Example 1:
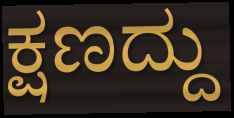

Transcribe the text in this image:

ಕ್ಷಣದ್ದು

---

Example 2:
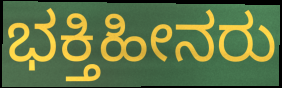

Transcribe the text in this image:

ಭಕ್ತಿಹೀನರು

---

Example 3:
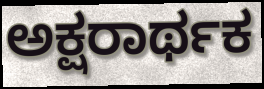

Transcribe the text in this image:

ಅಕ್ಷರಾರ್ಥಕ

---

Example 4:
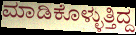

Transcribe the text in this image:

ಮಾಡಿಕೊಳ್ಳುತ್ತಿದ್ದ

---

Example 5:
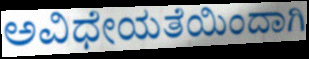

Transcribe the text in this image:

ಅವಿಧೇಯತೆಯಿಂದಾಗಿ